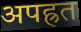
अपह्रत